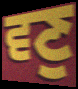
ਵਣੁ